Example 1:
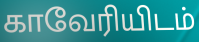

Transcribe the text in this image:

காவேரியிடம்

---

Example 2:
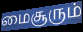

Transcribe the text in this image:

மைசூரும்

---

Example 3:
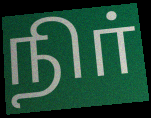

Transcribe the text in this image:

நிர்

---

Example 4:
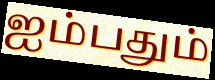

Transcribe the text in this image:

ஐம்பதும்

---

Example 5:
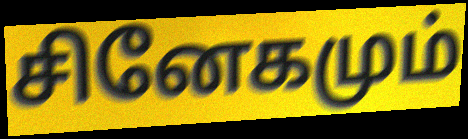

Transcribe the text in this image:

சினேகமும்